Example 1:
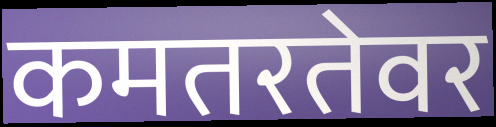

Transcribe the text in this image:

कमतरतेवर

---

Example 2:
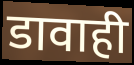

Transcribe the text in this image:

डावाही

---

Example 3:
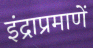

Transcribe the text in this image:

इंद्राप्रमाणें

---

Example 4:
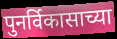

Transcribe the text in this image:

पुनर्विकासाच्या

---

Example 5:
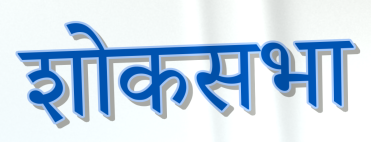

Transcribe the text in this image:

शोकसभा